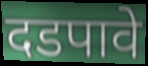
दडपावे